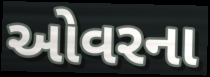
ઓવરના